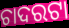
ଚାଦରଟା